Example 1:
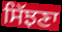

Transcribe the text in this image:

ਸਿੱਝਣਾ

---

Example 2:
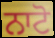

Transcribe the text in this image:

ਨਾਟੋ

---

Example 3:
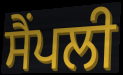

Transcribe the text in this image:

ਸੈਂਪਲੀ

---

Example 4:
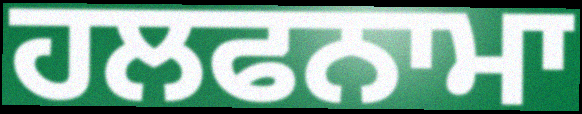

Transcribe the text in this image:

ਹਲਫਨਾਮਾ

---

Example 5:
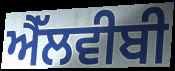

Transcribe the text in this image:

ਐੱਲਵੀਬੀ